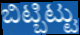
ಬಿಟ್ಬಿಟ್ಟು